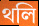
থলি